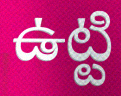
ఉట్టి